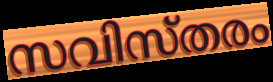
സവിസ്തരം